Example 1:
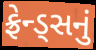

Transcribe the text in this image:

ફ્રેન્ડ્સનું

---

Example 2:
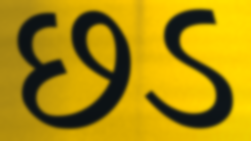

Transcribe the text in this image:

છડ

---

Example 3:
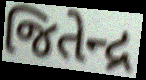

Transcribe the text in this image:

જિતેન્દ્ર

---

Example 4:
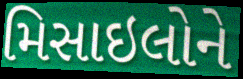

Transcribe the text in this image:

મિસાઇલોને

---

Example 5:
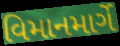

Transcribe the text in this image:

વિમાનમાર્ગે